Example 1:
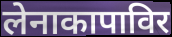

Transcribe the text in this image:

लेनाकापाविर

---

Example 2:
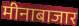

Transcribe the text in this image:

मीनाबाजार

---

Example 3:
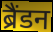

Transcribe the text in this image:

ब्रैंडन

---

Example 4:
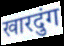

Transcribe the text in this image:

खारदुंग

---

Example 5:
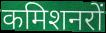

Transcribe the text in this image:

कमिशनरों